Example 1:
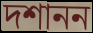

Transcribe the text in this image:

দশানন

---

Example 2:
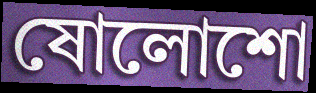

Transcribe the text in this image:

ষোলোশো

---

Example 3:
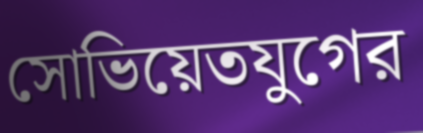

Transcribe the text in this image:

সোভিয়েতযুগের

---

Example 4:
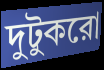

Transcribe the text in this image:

দুটুকরো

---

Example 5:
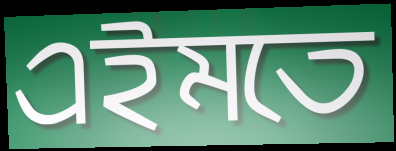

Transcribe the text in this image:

এইমতে